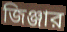
জিঞ্জার